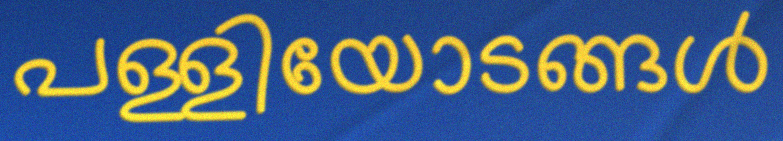
പള്ളിയോടങ്ങൾ